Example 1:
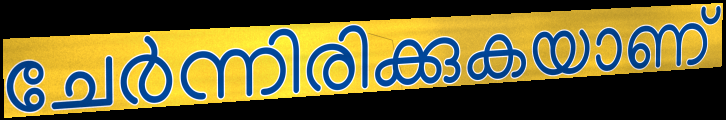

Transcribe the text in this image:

ചേർന്നിരിക്കുകയാണ്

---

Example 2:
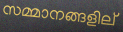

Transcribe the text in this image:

സമ്മാനങ്ങളില്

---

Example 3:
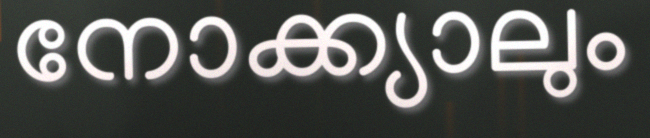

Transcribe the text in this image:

നോക്ക്യാലും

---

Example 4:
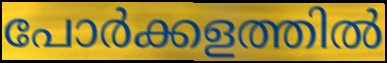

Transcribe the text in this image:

പോർക്കളത്തിൽ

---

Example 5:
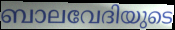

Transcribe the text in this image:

ബാലവേദിയുടെ